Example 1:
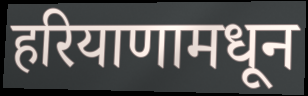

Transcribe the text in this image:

हरियाणामधून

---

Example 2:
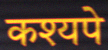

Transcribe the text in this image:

कश्यपे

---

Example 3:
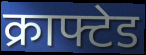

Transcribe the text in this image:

क्राफ्टेड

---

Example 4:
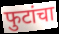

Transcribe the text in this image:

फुटांचा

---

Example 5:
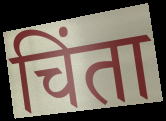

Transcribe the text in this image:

चिंता